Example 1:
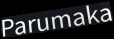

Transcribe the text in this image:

Parumaka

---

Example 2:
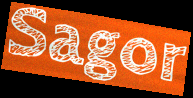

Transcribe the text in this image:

Sagor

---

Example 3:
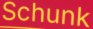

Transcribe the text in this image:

Schunk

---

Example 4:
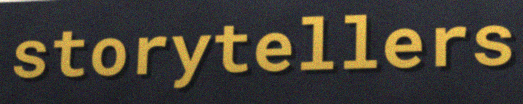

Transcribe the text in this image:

storytellers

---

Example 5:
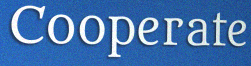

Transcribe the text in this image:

Cooperate